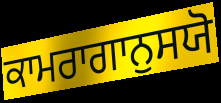
ਕਾਮਰਾਗਾਨੁਸਯੋ